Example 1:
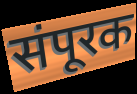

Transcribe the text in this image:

संपूरक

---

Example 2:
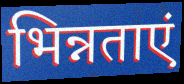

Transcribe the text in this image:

भिन्नताएं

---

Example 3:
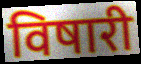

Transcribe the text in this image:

विषारी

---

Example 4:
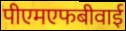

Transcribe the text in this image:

पीएमएफबीवाई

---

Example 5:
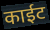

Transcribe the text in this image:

काईट